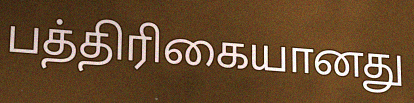
பத்திரிகையானது